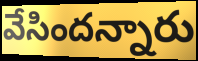
వేసిందన్నారు